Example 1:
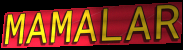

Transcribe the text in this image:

MAMALAR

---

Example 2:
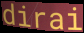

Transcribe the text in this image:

dirai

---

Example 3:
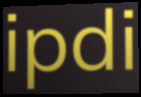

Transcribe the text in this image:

ipdi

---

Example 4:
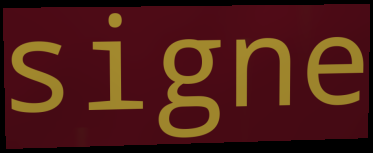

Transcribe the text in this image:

signe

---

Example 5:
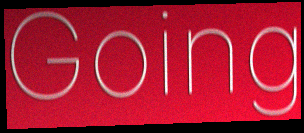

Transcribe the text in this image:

Going